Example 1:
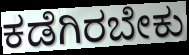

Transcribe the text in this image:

ಕಡೆಗಿರಬೇಕು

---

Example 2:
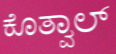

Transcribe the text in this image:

ಕೊತ್ವಾಲ್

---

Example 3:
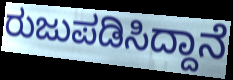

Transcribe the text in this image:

ರುಜುಪಡಿಸಿದ್ದಾನೆ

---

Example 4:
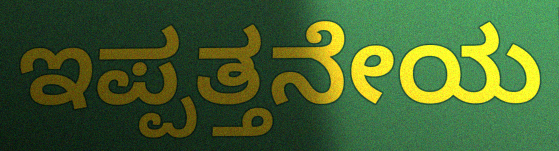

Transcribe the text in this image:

ಇಪ್ಪತ್ತನೇಯ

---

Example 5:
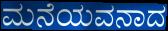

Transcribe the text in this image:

ಮನೆಯವನಾದ